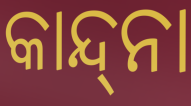
କାନ୍ଦ୍‌ନା